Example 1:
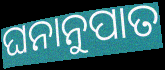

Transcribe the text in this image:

ଘନାନୁପାତ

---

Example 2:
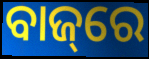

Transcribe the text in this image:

ବାଜ୍‌ରେ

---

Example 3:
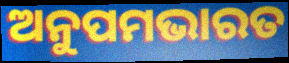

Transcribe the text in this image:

ଅନୁପମଭାରତ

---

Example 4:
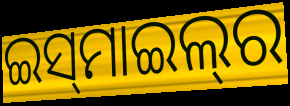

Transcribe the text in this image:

ଇସ୍‌ମାଇଲ୍‌ର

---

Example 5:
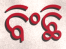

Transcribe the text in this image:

ବିଂଛି